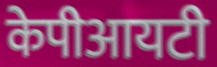
केपीआयटी